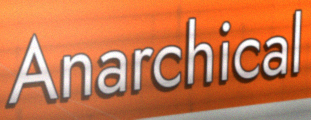
Anarchical